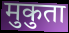
मुकुता